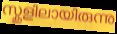
സ്കൂളിലായിരുന്നു